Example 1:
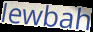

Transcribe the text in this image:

Iewbah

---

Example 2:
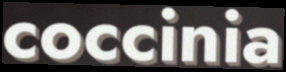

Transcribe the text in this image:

coccinia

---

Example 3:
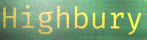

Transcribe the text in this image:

Highbury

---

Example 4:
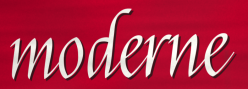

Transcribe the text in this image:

moderne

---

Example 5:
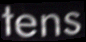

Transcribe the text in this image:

tens